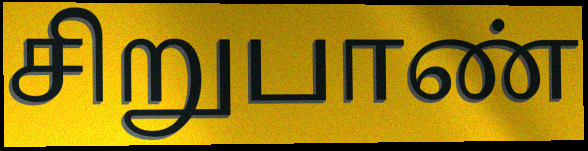
சிறுபாண்